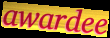
awardee